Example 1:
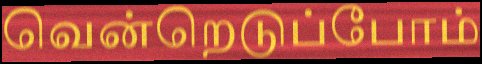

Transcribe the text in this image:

வென்றெடுப்போம்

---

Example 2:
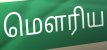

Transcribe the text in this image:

மெளரிய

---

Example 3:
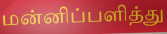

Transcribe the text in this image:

மன்னிப்பளித்து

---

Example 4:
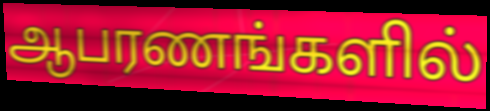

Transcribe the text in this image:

ஆபரணங்களில்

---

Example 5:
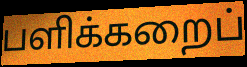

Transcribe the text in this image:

பளிக்கறைப்